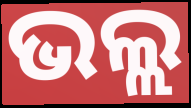
ଭଲ୍ଲ